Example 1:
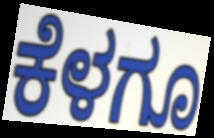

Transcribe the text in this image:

ಕೆಳಗೂ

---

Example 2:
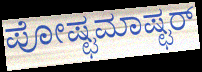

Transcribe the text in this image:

ಪೋಷ್ಟಮಾಷ್ಟರ್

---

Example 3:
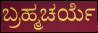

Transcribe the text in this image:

ಬ್ರಹ್ಮಚರ್ಯೆ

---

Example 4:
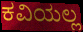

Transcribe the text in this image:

ಕವಿಯಲ್ಲ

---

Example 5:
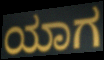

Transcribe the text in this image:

ಯಾಗ